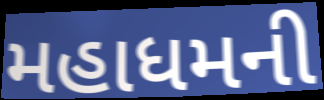
મહાધમની